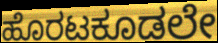
ಹೊರಟಕೂಡಲೇ